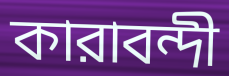
কারাবন্দী